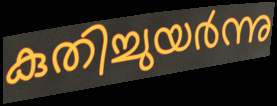
കുതിച്ചുയർന്നു